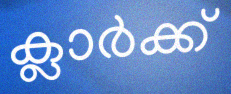
ക്ലാർക്ക്